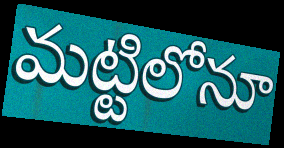
మట్టిలోనూ